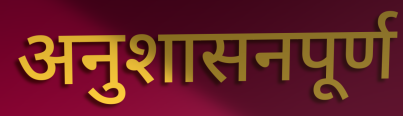
अनुशासनपूर्ण